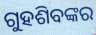
ଗୁହଶିବଙ୍କର